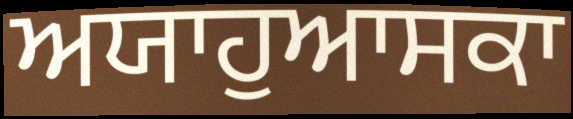
ਅਯਾਹੁਆਸਕਾ